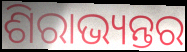
ଶିରାଭ୍ୟନ୍ତର